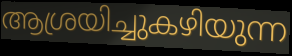
ആശ്രയിച്ചുകഴിയുന്ന